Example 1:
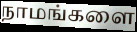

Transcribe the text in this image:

நாமங்களை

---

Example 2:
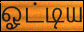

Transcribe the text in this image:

ஓட்டிய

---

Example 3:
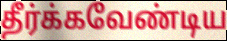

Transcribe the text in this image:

தீர்க்கவேண்டிய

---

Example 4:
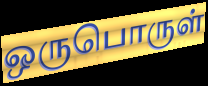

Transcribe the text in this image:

ஒருபொருள்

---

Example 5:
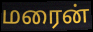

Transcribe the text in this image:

மரைன்